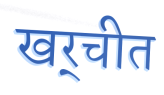
खर्चीत